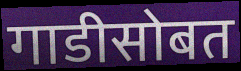
गाडीसोबत